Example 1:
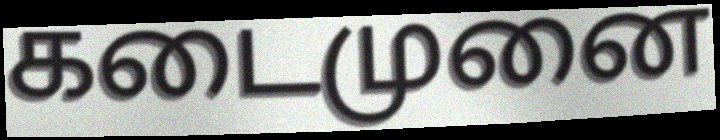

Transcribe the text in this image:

கடைமுனை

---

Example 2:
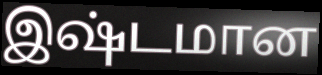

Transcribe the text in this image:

இஷ்டமான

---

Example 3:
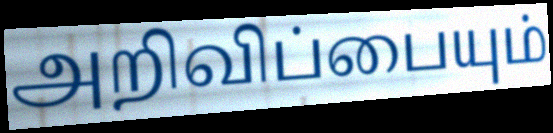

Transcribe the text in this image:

அறிவிப்பையும்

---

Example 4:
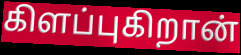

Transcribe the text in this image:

கிளப்புகிறான்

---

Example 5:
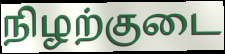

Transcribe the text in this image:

நிழற்குடை